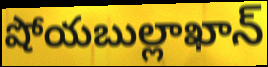
షోయబుల్లాఖాన్